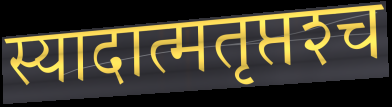
स्यादात्मतृप्तश्च